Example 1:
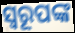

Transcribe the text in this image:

ସ୍ୱରୂପଙ୍କ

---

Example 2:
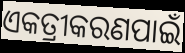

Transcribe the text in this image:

ଏକତ୍ରୀକରଣପାଇଁ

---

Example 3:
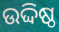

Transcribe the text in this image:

ଉଦ୍ଦିଷ୍ଠ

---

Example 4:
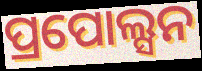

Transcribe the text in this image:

ପ୍ରପୋଲ୍ସନ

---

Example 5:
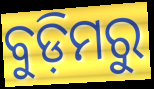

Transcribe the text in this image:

ବୁଡ଼ିମରୁ